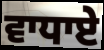
ਵਾਧਾਏ